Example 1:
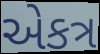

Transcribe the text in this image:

એકત્ર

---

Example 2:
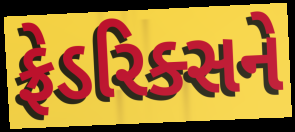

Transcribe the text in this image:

ફ્રેડરિક્સને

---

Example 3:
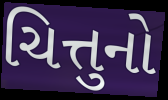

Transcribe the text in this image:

ચિત્તુનો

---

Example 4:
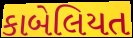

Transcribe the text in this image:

કાબેલિયત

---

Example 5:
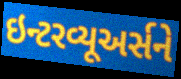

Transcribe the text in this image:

ઇન્ટરવ્યૂઅર્સને